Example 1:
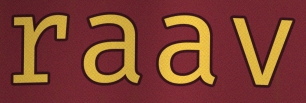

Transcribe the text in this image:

raav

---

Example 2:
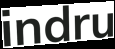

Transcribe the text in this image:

indru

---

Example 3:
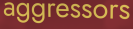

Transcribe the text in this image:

aggressors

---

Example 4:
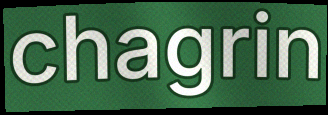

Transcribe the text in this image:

chagrin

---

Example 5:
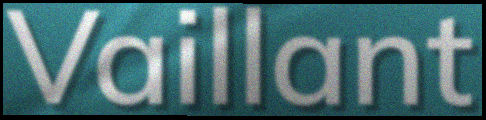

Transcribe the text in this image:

Vaillant